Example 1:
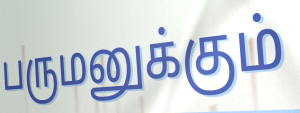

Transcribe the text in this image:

பருமனுக்கும்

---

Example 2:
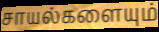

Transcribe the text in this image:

சாயல்களையும்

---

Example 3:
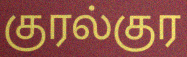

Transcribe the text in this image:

குரல்குர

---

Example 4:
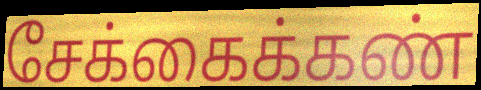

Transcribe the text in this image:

சேக்கைக்கண்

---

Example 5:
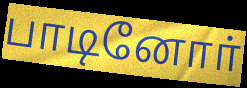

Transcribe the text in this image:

பாடினோர்